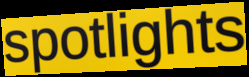
spotlights